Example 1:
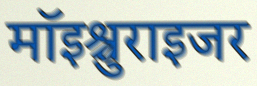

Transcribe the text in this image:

मॉइश्चुराइजर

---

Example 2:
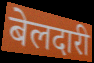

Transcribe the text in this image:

बेलदारी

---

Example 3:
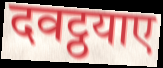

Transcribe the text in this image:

दवट्ठयाए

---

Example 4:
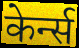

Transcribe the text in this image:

केर्न्स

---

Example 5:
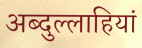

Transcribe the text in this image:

अब्दुल्लाहियां